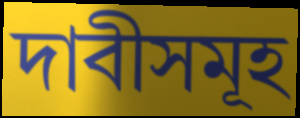
দাবীসমূহ